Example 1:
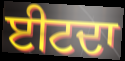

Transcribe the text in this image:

ਈਟਦਾ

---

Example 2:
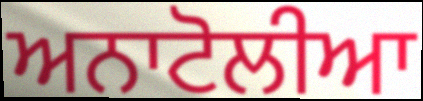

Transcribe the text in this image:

ਅਨਾਟੋਲੀਆ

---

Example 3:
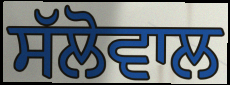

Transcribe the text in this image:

ਸੱਲੋਵਾਲ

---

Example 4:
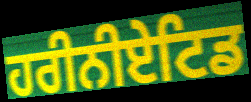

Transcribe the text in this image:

ਹਰੀਨੀਏਟਿਡ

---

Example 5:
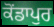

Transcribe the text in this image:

ਕੋਂਡਾਪੁਰ